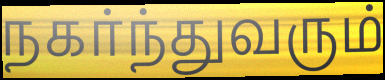
நகர்ந்துவரும்